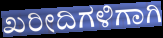
ಖರೀದಿಗಳಿಗಾಗಿ